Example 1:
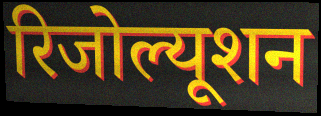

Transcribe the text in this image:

रिजोल्यूशन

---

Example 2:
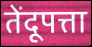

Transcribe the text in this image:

तेंदूपत्ता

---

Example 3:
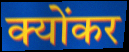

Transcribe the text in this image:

क्‍योंकर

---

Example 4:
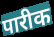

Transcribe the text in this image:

पारीक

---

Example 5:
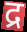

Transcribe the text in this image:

द्र